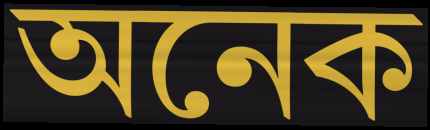
অনেক